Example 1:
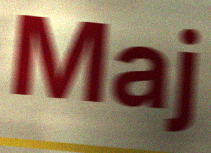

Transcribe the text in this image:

Maj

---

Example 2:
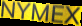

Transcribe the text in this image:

NYMEX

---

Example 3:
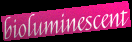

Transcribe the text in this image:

bioluminescent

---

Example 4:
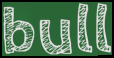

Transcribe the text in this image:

bull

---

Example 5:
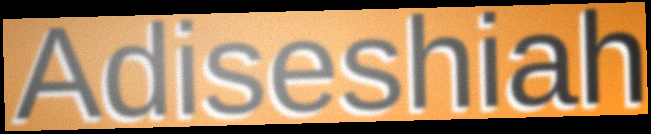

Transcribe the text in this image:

Adiseshiah